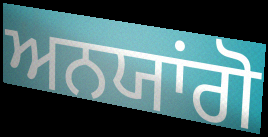
ਅਨਯਾਂਗੋ